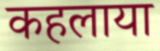
कहलाया